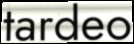
tardeo